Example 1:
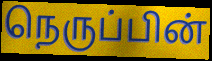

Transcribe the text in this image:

நெருப்பின்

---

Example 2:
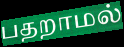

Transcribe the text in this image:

பதறாமல்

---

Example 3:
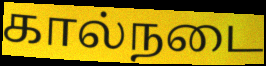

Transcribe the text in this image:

கால்நடை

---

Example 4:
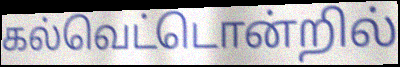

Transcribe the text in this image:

கல்வெட்டொன்றில்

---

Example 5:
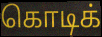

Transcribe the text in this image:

கொடிக்